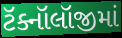
ટૅક્નૉલૉજીમાં